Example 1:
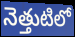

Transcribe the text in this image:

నెత్తుటిలో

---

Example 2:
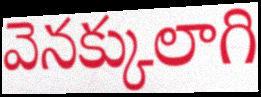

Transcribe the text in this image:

వెనక్కులాగి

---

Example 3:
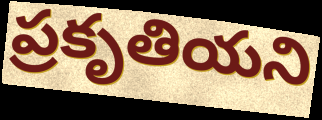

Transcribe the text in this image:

ప్రకృతియని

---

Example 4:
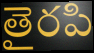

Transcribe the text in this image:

తైరపి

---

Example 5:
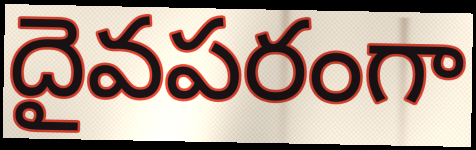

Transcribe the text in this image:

దైవపరంగా